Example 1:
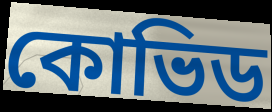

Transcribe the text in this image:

কোভিড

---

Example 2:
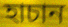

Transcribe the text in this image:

হাচান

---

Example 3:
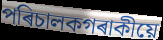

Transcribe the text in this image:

পৰিচালকগৰাকীয়ে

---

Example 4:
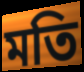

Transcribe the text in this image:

মতি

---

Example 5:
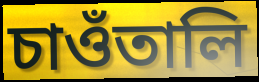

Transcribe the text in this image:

চাওঁতালি